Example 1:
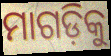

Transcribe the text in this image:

ମାଗଡ଼ିକୁ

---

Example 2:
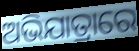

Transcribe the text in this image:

ଅଭିଯାତ୍ରାରେ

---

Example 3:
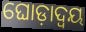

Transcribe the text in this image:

ଘୋଡ଼ାଦ୍ୱୟ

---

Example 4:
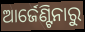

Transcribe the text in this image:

ଆର୍ଜେଣ୍ଟିନାରୁ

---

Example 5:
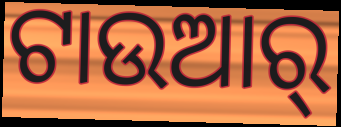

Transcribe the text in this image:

ଟାଉଆର୍